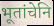
भूतांचेनि